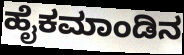
ಹೈಕಮಾಂಡಿನ